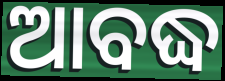
ଆବଦ୍ଧ